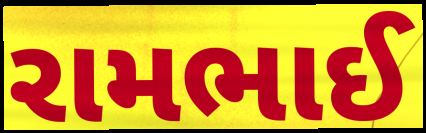
રામભાઈ